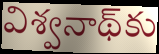
విశ్వనాథ్‌కు